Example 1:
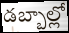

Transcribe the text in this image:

డబ్బాల్లో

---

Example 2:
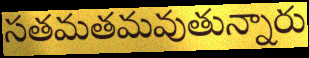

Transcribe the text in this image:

సతమతమవుతున్నారు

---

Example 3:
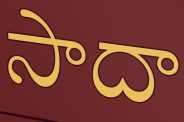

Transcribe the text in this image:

సాదా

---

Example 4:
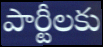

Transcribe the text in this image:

పార్టీలకు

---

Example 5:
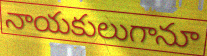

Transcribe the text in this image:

నాయకులుగానూ